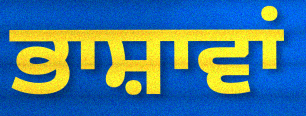
ਭਾਸ਼ਾਵਾਂ